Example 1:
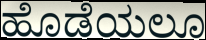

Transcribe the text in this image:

ಹೊಡೆಯಲೂ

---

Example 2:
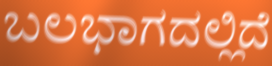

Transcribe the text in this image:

ಬಲಭಾಗದಲ್ಲಿದೆ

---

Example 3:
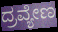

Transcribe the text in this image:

ದ್ರವ್ಯೇಣ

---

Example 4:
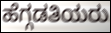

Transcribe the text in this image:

ಹೆಗ್ಗಡತಿಯರು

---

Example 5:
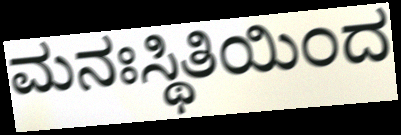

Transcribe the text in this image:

ಮನಃಸ್ಥಿತಿಯಿಂದ